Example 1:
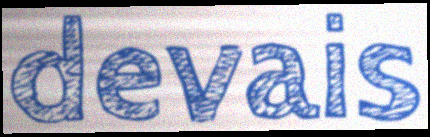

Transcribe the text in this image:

devais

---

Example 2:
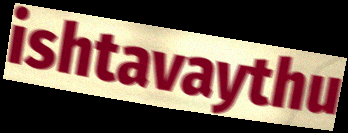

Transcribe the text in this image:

ishtavaythu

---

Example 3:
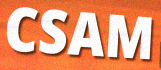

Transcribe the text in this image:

CSAM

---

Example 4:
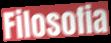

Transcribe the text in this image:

Filosofia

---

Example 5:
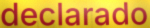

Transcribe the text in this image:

declarado